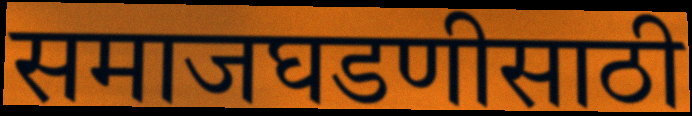
समाजघडणीसाठी